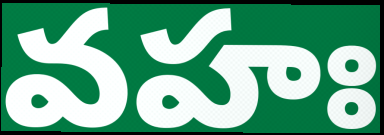
వహః